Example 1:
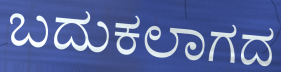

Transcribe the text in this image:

ಬದುಕಲಾಗದ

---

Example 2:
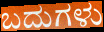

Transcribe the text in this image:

ಬದುಗಳು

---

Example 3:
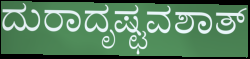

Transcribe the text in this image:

ದುರಾದೃಷ್ಟವಶಾತ್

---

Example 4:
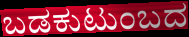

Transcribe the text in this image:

ಬಡಕುಟುಂಬದ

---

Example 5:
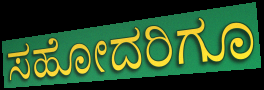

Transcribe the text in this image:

ಸಹೋದರಿಗೂ